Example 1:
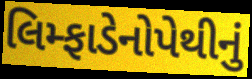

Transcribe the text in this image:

લિમ્ફાડેનોપેથીનું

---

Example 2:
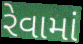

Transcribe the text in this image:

રેવામાં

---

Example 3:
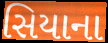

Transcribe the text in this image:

સિયાના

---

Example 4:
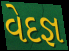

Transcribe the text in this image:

વેદજ્ઞ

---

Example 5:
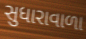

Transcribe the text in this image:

સુધારાવાળા